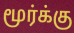
மூர்க்கு